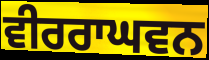
ਵੀਰਰਾਘਵਨ